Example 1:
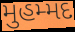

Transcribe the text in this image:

મુહમ્મદ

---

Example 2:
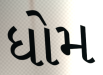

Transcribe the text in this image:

ધોમ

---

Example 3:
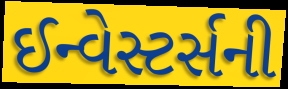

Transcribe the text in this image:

ઈન્વેસ્ટર્સની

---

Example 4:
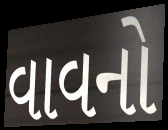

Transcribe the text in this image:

વાવનો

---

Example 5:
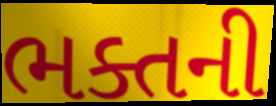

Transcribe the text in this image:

ભક્તની